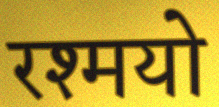
रश्मयो